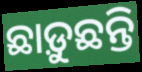
ଛାଡ଼ୁଛନ୍ତି